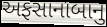
અફસાનાબાનુ